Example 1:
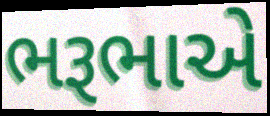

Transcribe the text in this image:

ભરૂભાએ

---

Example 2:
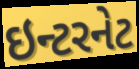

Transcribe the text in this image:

ઇન્ટરનેટ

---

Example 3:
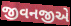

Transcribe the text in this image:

જીવનજીએ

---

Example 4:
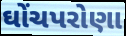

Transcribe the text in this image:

ઘોંચપરોણા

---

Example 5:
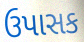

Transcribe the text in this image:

ઉપાસક